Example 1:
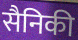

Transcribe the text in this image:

सैनिकी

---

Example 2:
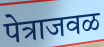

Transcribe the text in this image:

पेत्राजवळ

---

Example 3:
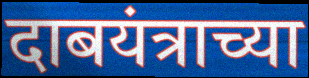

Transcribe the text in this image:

दाबयंत्राच्या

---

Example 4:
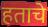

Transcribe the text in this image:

हताचे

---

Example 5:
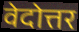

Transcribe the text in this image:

वेदोत्तर